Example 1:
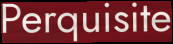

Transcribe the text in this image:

Perquisite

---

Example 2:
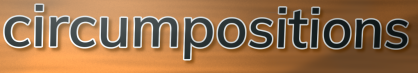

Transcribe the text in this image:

circumpositions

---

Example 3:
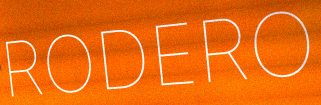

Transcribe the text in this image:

RODERO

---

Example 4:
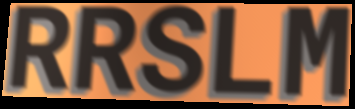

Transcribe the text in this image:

RRSLM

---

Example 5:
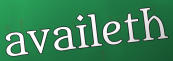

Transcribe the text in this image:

availeth